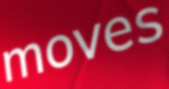
moves